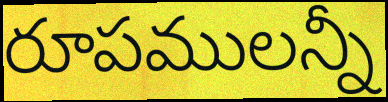
రూపములన్నీ